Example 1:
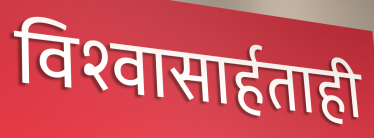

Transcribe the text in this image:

विश्वासार्हताही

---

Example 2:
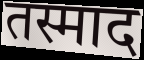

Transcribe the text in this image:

तस्माद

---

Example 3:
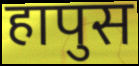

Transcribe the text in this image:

हापुस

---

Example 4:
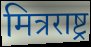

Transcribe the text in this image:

मित्रराष्ट्र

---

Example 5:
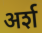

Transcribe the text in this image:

अर्श